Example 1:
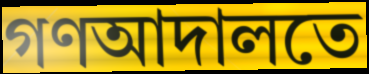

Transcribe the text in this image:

গণআদালতে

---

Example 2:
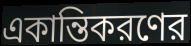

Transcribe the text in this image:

একান্তিকরণের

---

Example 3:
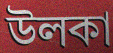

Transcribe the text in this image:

উলকা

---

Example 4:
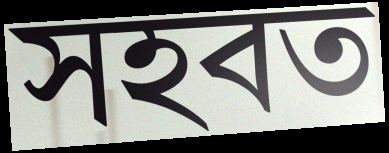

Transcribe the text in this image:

সহবত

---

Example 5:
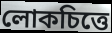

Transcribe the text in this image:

লোকচিত্তে